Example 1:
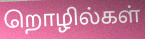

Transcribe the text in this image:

றொழில்கள்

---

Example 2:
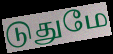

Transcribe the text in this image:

டுதுமே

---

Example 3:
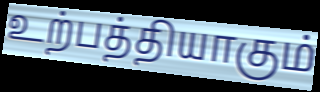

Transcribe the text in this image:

உற்பத்தியாகும்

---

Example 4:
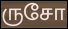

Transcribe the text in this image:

ருசோ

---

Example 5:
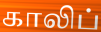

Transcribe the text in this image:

காலிப்